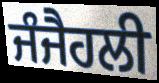
ਜੰਜੈਹਲੀ